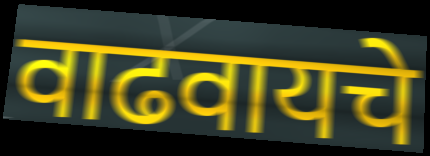
वाढवायचे